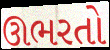
ઊભરતો